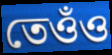
তেওঁও